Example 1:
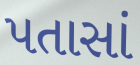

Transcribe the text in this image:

પતાસાં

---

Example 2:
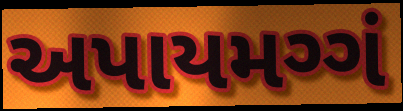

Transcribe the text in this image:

અપાયમગ્ગં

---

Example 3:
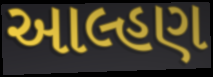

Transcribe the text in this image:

આલ્હણ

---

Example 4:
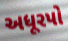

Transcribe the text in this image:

અધૂરપો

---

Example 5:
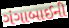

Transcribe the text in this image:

ગંગાબાઈની